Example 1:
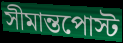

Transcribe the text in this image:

সীমান্তপোস্ট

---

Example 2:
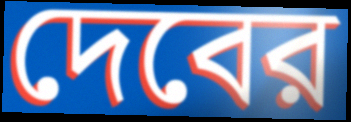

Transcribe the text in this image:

দেবের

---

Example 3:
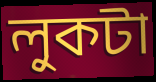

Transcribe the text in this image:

লুকটা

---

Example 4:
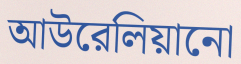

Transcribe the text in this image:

আউরেলিয়ানো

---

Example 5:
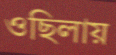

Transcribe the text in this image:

ওছিলায়